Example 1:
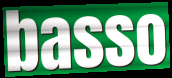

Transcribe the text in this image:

basso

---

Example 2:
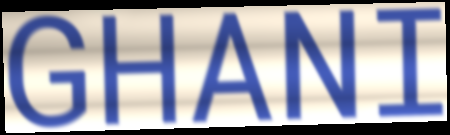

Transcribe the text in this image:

GHANI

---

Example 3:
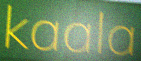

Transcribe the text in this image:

kaala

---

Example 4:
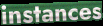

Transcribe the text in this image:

instances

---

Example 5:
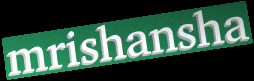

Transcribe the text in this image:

mrishansha